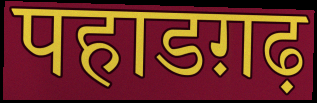
पहाडग़ढ़